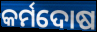
କର୍ମଦୋଷ